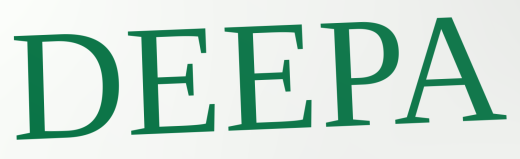
DEEPA